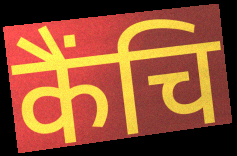
कैंचि